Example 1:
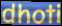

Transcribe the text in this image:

dhoti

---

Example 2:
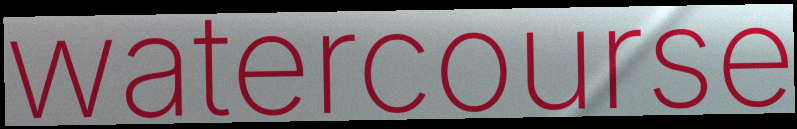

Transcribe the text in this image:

watercourse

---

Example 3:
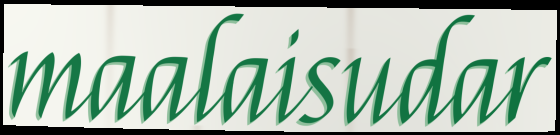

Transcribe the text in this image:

maalaisudar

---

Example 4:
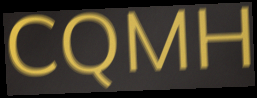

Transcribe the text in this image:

CQMH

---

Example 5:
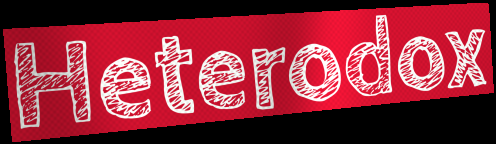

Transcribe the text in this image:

Heterodox